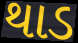
થાડ